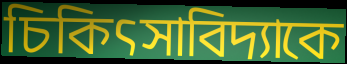
চিকিৎসাবিদ্যাকে